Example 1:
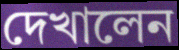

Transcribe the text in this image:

দেখালেন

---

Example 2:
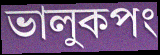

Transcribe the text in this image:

ভালুকপং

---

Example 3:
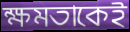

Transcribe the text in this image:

ক্ষমতাকেই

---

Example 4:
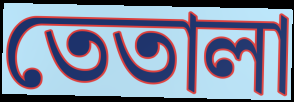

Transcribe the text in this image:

তেতালা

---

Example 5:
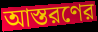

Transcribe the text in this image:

আস্তরণের